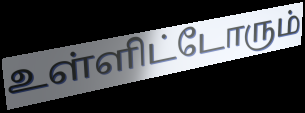
உள்ளிட்டோரும்